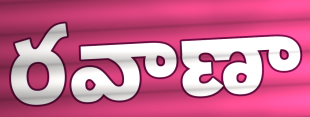
రవాణా